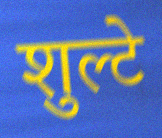
शुल्टे